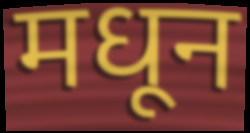
मधून